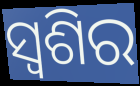
ସ୍ଵଶିର